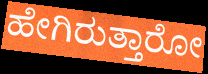
ಹೇಗಿರುತ್ತಾರೋ